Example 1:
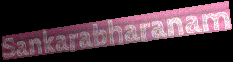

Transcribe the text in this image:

Sankarabharanam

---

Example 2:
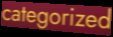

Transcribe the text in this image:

categorized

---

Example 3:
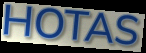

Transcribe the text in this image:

HOTAS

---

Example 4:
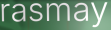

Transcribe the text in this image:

rasmay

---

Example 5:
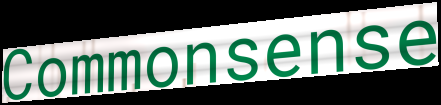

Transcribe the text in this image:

Commonsense